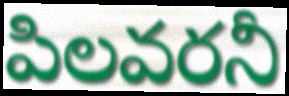
పిలవరనీ